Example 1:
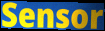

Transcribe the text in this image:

Sensor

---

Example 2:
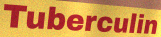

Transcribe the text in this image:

Tuberculin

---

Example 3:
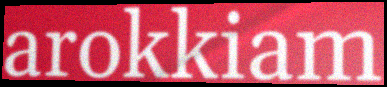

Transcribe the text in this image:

arokkiam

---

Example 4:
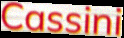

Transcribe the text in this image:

Cassini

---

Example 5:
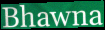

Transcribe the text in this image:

Bhawna